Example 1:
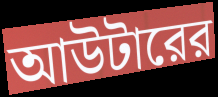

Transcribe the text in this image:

আউটারের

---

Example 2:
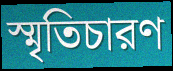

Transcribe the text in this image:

স্মৃতিচারণ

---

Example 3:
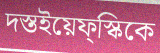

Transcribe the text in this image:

দস্তইয়েফ্স্কিকে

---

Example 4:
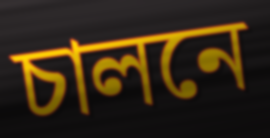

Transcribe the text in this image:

চালনে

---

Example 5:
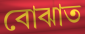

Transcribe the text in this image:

বোঝাত